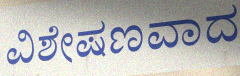
ವಿಶೇಷಣವಾದ